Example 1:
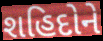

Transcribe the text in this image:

શહિદોને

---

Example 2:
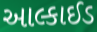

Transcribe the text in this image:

આલ્કાઈડ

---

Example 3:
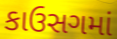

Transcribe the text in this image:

કાઉસગમાં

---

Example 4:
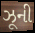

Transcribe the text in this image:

ઝૂની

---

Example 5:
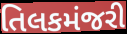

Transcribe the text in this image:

તિલકમંજરી